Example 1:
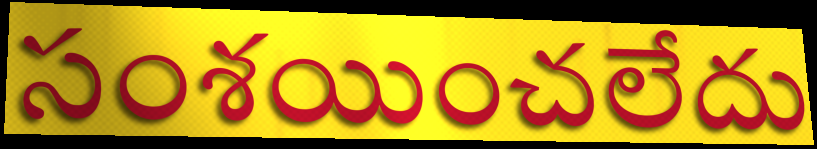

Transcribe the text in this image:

సంశయించలేదు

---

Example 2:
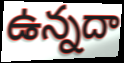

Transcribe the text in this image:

ఉన్నదా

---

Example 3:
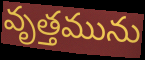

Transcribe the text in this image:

వృత్తమును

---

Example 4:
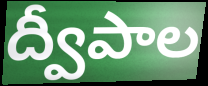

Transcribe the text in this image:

ద్వీపాల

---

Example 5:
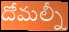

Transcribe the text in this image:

దోమల్నీ